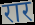
रार